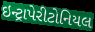
ઇન્ટ્રાપેરીટોનિયલ